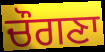
ਚੌਗਣਾ